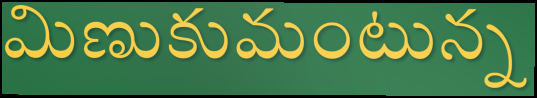
మిణుకుమంటున్న